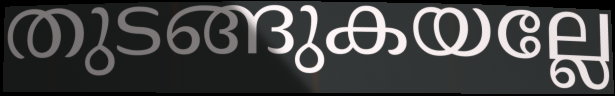
തുടങ്ങുകയല്ലേ